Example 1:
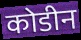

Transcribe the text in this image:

कोडीन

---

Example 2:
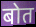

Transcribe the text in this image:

बोत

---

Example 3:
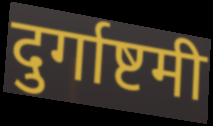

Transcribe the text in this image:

दुर्गाष्टमी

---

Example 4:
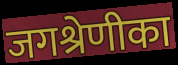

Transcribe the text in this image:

जगश्रेणीका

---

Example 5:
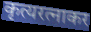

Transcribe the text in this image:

कृत्यरत्नाकर